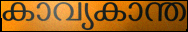
കാവ്യകാന്ത